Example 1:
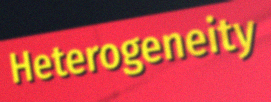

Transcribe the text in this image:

Heterogeneity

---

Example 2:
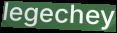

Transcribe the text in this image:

legechey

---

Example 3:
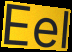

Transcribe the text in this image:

Eel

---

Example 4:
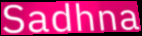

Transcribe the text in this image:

Sadhna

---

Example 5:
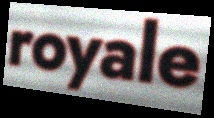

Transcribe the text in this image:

royale